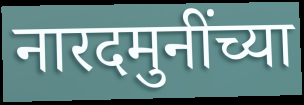
नारदमुनींच्या